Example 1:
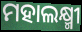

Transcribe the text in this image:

ମହାଲକ୍ଷ୍ମୀ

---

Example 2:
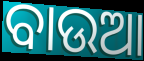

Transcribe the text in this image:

ବାଉଆ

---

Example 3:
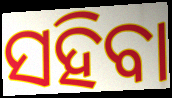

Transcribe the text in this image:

ସହିବା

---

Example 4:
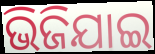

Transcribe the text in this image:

ଭିଜିଯାଇ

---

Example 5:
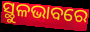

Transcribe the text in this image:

ସ୍ଥୁଳଭାବରେ